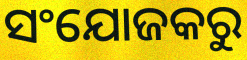
ସଂଯୋଜକରୁ